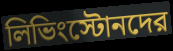
লিভিংস্টোনদের